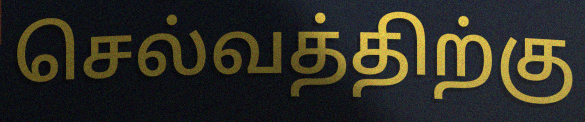
செல்வத்திற்கு